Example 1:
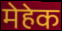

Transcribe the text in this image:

मेहेक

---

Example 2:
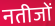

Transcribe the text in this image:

नतीजों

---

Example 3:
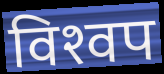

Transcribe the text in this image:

विश्वप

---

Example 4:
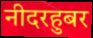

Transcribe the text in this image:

नीदरहुबर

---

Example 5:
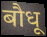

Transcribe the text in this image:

बौधू